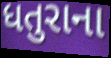
ધતુરાના